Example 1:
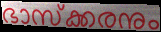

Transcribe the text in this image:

ഭാസ്ക്കരനും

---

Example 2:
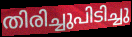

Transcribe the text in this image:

തിരിച്ചുപിടിച്ചു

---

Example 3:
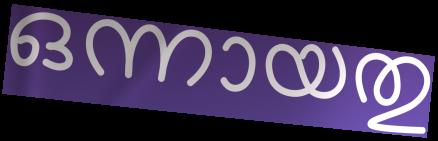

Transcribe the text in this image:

ഒന്നായതു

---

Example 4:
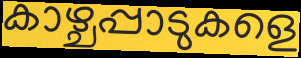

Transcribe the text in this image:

കാഴ്ചപ്പാടുകളെ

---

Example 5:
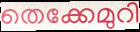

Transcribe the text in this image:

തെക്കേമുറി